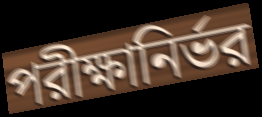
পরীক্ষানির্ভর